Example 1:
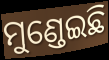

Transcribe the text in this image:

ମୁଣ୍ଡେଇଛି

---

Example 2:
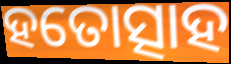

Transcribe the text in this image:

ହତୋତ୍ସାହ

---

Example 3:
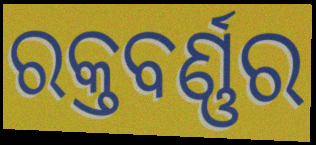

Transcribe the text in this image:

ରକ୍ତବର୍ଣ୍ଣର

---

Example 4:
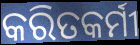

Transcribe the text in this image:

କରିତକର୍ମୀ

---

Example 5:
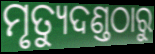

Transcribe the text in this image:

ମୃତ୍ୟୁଦଣ୍ଡଠାରୁ